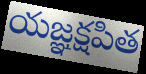
యజ్ఞక్షపిత